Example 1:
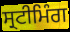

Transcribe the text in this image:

ਸ੍ਰਟੀਮਿੰਗ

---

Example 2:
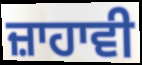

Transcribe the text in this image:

ਜ਼ਾਹਾਵੀ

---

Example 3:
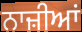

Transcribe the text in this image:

ਨਾਜ਼ੀਆਂ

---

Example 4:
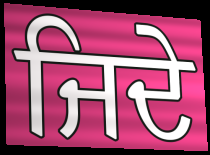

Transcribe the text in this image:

ਜਿਦੇ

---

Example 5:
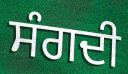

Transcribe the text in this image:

ਸੰਗਦੀ